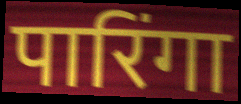
पारिंगा